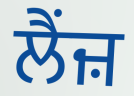
ਲੈਂਜ਼